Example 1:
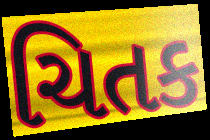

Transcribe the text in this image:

ચિતક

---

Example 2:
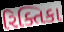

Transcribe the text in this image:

રિક્તિકા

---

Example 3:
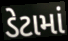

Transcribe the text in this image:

ડેટામાં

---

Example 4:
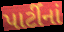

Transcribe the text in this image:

પાર્ટીનાં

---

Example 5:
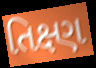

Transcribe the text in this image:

તિક્ષ્ણ